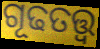
ଗୂଢତତ୍ତ୍ୱ